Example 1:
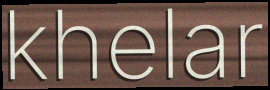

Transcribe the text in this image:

khelar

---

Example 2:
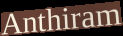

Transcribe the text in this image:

Anthiram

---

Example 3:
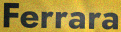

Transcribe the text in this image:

Ferrara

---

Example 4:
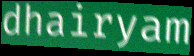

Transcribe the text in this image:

dhairyam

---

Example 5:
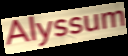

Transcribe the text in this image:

Alyssum